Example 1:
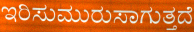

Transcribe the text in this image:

ಇರಿಸುಮುರುಸಾಗುತ್ತದೆ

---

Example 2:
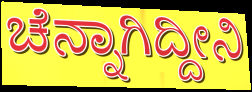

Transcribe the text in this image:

ಚೆನ್ನಾಗಿದ್ದೀನಿ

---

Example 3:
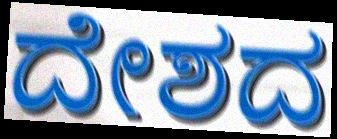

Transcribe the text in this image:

ದೇಶದ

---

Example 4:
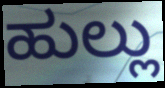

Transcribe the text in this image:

ಹುಲ್ಲು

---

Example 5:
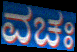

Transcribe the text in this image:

ವಚಃ